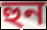
হুন